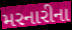
મરનારીના